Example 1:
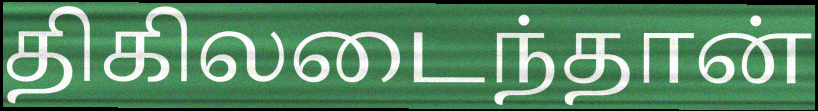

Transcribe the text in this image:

திகிலடைந்தான்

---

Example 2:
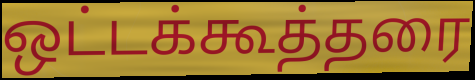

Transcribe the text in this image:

ஒட்டக்கூத்தரை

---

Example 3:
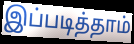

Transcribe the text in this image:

இப்படித்தாம்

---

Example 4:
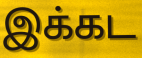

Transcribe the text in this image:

இக்கட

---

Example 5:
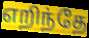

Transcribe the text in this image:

எறிந்தே